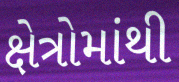
ક્ષેત્રોમાંથી